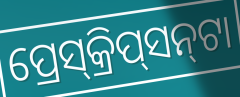
ପ୍ରେସ୍‌କ୍ରିପ୍‌ସନ୍‌ଟା